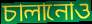
চালানোও